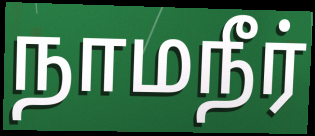
நாமநீர்